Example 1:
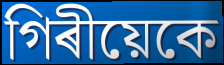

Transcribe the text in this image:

গিৰীয়েকে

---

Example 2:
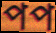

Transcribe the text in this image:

পপ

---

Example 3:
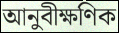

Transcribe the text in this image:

আনুবীক্ষণিক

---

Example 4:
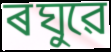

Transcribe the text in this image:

ৰঘুৱে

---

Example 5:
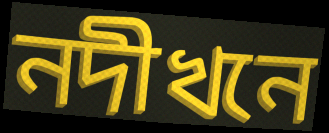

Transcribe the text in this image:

নদীখনে